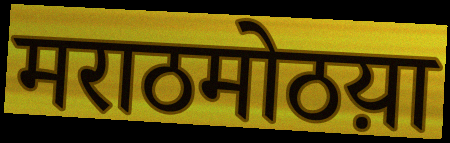
मराठमोठय़ा